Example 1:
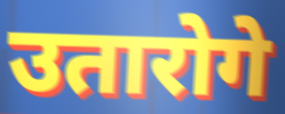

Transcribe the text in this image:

उतारोगे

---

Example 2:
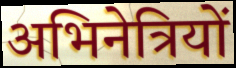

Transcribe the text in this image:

अभिनेत्रियों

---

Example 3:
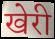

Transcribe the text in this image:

खेरी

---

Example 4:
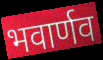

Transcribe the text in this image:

भवार्णव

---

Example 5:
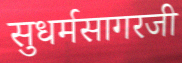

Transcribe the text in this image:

सुधर्मसागरजी